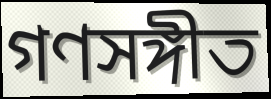
গণসঙ্গীত